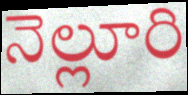
నెల్లూరి